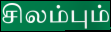
சிலம்பும்